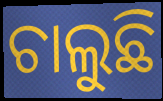
ଚାଲୁଛି